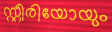
സ്റ്റീരിയോയും